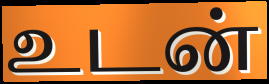
உடன்